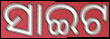
ସାଇଟ